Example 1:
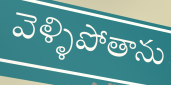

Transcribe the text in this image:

వెళ్ళిపోతాను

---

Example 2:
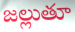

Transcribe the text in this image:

జల్లుతూ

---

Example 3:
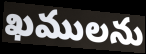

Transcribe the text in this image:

ఖములను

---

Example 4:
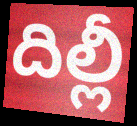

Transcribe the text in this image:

దిల్లీ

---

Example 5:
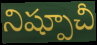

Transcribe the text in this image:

నిష్పూచీ